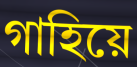
গাহিয়ে